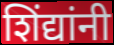
शिंद्यांनी